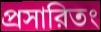
প্রসারিতং